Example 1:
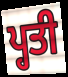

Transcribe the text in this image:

ਪ੍ਹਤੀ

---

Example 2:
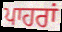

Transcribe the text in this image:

ਪਾਹਰਾਂ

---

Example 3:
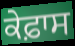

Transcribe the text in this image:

ਕੇਫ਼ਾਸ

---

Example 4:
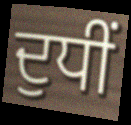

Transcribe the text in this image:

ਦੁਧੀਂ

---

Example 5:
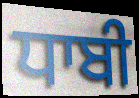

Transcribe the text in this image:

ਧਾਬੀ